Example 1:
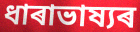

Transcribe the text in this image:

ধাৰাভাষ্যৰ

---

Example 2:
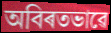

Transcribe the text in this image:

অবিৰতভাৱে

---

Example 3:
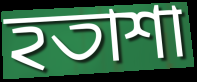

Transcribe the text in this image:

হতাশা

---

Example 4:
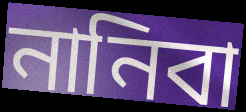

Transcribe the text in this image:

নানিবা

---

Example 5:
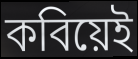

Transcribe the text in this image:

কবিয়েই